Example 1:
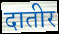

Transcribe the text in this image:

दातीर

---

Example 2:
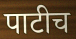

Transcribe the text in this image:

पाटीच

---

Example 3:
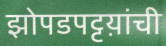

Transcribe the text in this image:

झोपडपट्टय़ांची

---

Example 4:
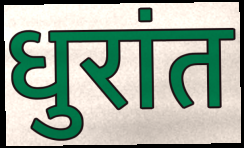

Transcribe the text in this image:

धुरांत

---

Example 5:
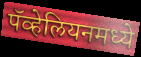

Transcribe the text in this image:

पॅव्हेलियनमध्ये